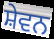
ਸ਼ੇਵਨ